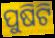
ପୁଷିଟି